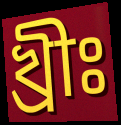
খ্রীঃ